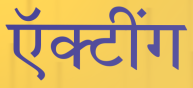
ऍक्टींग